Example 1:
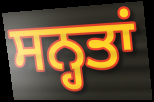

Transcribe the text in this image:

ਸਨ੍ਹਤਾਂ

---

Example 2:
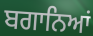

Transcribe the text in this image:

ਬਗਾਨਿਆਂ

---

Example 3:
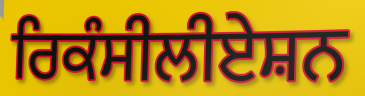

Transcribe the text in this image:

ਰਿਕੰਸੀਲੀਏਸ਼ਨ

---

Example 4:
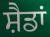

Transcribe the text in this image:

ਸ਼ੈਡਾਂ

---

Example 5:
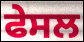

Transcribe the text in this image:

ਫੇਸਲ